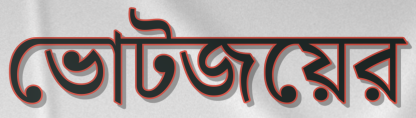
ভোটজয়ের